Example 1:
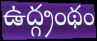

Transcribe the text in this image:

ఉద్గ్రంథం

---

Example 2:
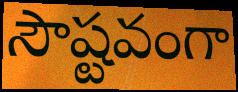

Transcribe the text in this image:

సౌష్టవంగా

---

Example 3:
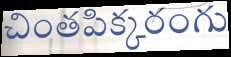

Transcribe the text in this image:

చింతపిక్కరంగు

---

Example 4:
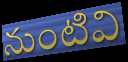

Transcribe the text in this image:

నుంటివి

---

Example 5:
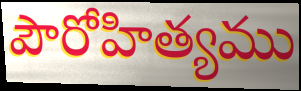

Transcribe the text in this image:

పౌరోహిత్యము